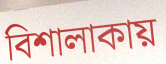
বিশালাকায়